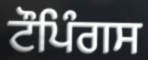
ਟੌਪਿੰਗਸ